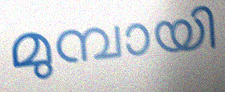
മുമ്പായി